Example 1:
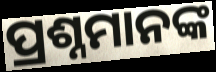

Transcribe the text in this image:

ପ୍ରଶ୍ନମାନଙ୍କ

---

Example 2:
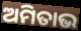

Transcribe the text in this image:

ଅମିତାଭ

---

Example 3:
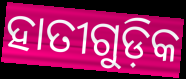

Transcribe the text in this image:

ହାତୀଗୁଡ଼ିକ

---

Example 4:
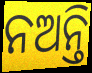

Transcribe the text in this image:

ନଅନ୍ତି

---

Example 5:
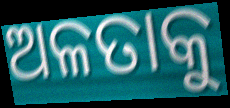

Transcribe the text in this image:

ଅଳତାକୁ